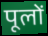
पूलों